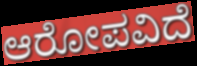
ಆರೋಪವಿದೆ